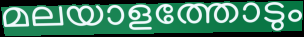
മലയാളത്തോടും